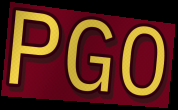
PGO